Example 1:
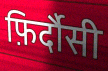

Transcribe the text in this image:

फ़िर्दौसी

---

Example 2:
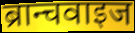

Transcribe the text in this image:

ब्रान्चवाइज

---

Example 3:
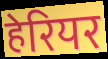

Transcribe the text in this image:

हेरियर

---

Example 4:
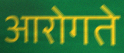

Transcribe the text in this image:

आरोगते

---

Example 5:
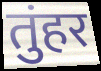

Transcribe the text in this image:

तुंहर